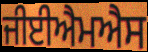
ਜੀਈਐਮਐਸ